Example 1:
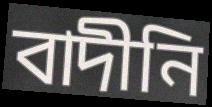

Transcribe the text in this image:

বাদীনি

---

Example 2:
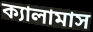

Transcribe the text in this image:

ক্যালামাস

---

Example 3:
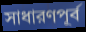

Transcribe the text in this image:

সাধারণপূর্ব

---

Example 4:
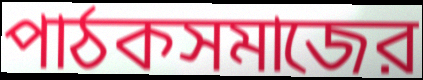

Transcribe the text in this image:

পাঠকসমাজের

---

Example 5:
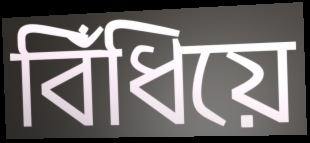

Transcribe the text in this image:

বিঁধিয়ে